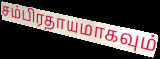
சம்பிரதாயமாகவும்